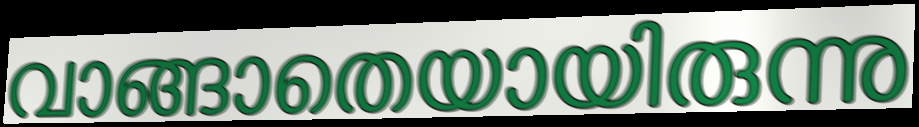
വാങ്ങാതെയായിരുന്നു